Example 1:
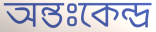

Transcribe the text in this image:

অন্তঃকেন্দ্র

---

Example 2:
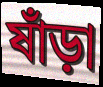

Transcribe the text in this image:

ষাঁড়া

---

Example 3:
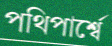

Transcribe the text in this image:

পথিপার্শ্বে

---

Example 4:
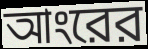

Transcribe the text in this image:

আংরের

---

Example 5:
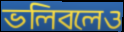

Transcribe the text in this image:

ভলিবলেও